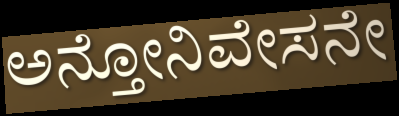
ಅನ್ತೋನಿವೇಸನೇ